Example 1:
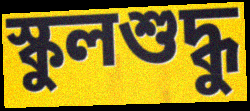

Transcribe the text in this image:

স্কুলশুদ্ধু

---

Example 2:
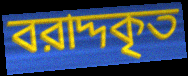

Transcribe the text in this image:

বরাদ্দকৃত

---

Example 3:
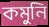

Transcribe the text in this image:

কমুনি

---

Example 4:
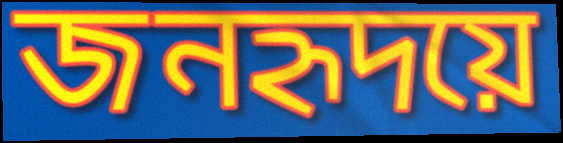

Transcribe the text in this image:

জনহৃদয়ে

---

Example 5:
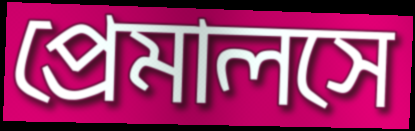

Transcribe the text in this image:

প্রেমালসে